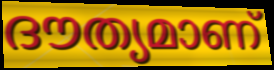
ദൗത്യമാണ്